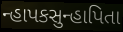
ન્હાપકસુન્હાપિતા